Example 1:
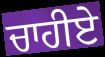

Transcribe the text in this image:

ਚਾਹੀਏ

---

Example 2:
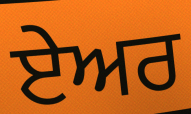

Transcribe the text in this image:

ਏੇਅਰ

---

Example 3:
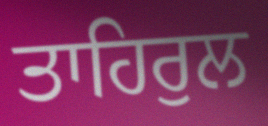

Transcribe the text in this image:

ਤਾਹਿਰੁਲ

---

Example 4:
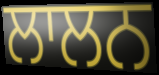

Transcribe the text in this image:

ਲਾਲਨ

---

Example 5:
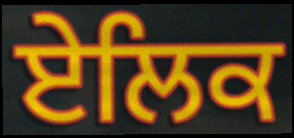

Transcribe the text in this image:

ਏਲਿਕ